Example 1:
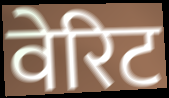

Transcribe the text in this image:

वेरिट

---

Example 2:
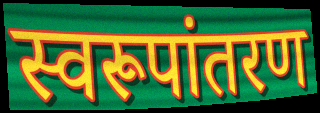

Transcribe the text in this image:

स्वरूपांतरण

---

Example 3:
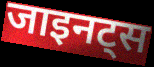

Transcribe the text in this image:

जाइनट्स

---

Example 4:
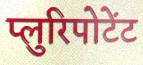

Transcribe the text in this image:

प्लुरिपोटेंट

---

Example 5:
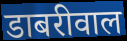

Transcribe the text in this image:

डाबरीवाल